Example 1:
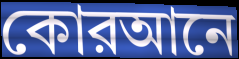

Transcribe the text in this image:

কোরআনে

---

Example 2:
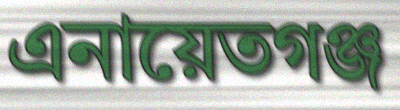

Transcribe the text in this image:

এনায়েতগঞ্জ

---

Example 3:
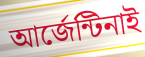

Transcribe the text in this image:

আর্জেন্টিনাই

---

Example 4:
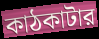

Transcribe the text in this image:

কাঠকাটার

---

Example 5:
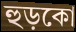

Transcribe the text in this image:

হুড়কো